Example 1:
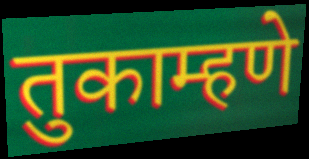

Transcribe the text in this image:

तुकाम्हणे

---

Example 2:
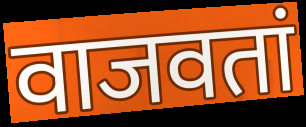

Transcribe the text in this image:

वाजवतां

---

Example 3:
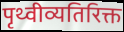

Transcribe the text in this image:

पृथ्वीव्यतिरिक्त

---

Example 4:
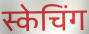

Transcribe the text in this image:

स्केचिंग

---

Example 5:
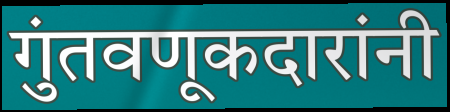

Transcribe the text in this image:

गुंतवणूकदारांनी